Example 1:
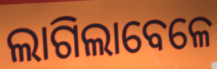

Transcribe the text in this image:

ଲାଗିଲାବେଳେ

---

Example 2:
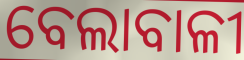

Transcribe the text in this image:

ବେଲାବାଳୀ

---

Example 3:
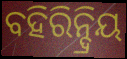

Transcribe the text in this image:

ବହିରିନ୍ଦ୍ରିୟ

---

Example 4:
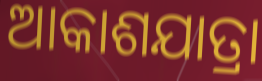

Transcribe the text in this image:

ଆକାଶଯାତ୍ରା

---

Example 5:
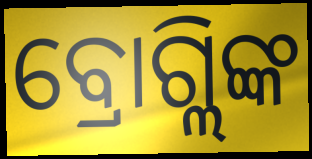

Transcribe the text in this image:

ବ୍ରୋଗ୍ଲିଙ୍କ